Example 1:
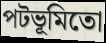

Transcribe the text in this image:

পটভূমিতো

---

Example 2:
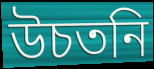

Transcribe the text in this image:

উচতনি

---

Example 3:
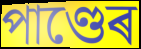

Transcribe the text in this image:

পাণ্ডেৰ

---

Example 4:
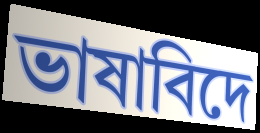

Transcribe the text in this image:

ভাষাবিদে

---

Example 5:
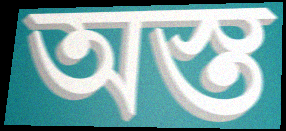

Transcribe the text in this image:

অস্ত